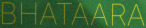
BHATAARA